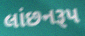
લાંછનરૂપ